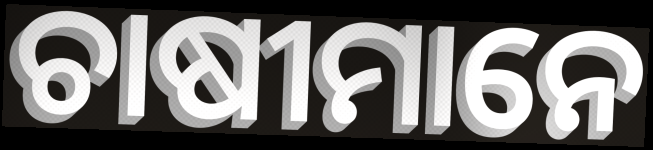
ଚାଷୀମାନେ